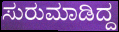
ಸುರುಮಾಡಿದ್ದ